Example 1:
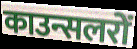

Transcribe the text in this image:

काउन्सलरों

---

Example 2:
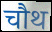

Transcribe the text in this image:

चौथ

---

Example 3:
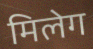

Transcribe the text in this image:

मिलेग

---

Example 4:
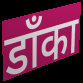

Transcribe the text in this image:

डाँका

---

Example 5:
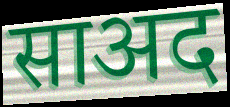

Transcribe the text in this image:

साअद